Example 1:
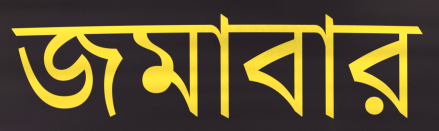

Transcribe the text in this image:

জমাবার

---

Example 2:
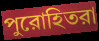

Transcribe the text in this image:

পুরোহিতরা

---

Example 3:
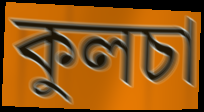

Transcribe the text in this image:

কুলচা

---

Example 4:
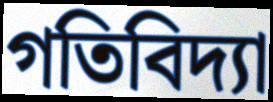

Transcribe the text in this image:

গতিবিদ্যা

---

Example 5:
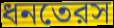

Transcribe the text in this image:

ধনতেরস